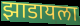
झाडायला